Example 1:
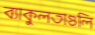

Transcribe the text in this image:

ব্যাকুলতাগুলি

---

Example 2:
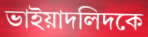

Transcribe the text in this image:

ভাইয়াদলিদকে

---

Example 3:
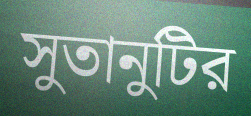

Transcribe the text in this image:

সুতানুটির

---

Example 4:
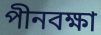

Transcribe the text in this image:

পীনবক্ষা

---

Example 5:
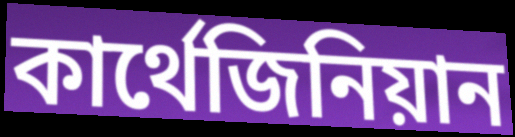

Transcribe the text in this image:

কার্থেজিনিয়ান